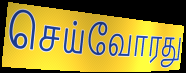
செய்வோரது